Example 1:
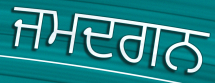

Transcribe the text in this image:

ਜਮਦਗਨ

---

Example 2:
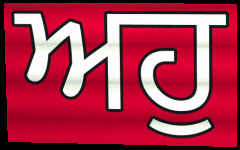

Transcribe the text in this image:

ਅਹੁ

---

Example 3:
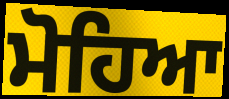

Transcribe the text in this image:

ਮੋਹਿਆ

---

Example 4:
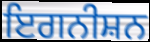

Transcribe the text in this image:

ਇਗਨੀਸ਼ਨ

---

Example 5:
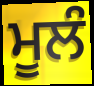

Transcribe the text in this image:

ਮੂਲੰ